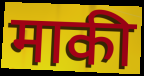
माकी